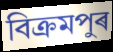
বিক্ৰমপুৰ